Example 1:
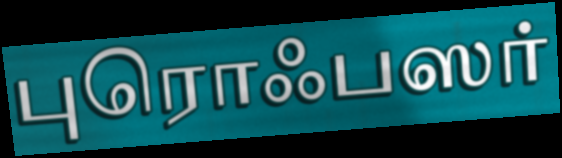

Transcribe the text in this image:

புரொஃபஸர்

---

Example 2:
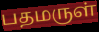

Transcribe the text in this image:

பதமருள்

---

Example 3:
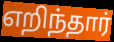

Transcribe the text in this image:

எறிந்தார்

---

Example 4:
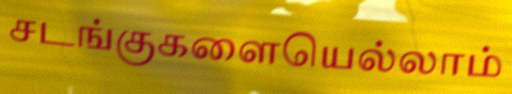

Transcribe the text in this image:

சடங்குகளையெல்லாம்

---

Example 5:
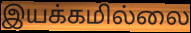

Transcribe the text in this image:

இயக்கமில்லை